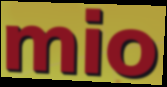
mio